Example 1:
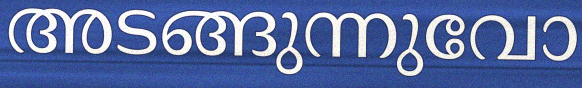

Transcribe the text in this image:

അടങ്ങുന്നുവോ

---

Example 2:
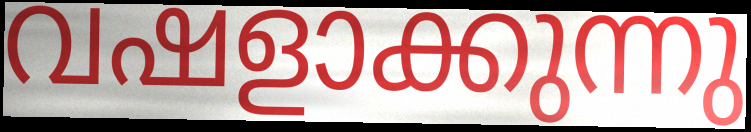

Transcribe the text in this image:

വഷളാക്കുന്നു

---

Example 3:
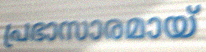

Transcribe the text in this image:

പ്രഭാസാരമായ്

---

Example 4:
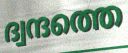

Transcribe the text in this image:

ദ്വന്ദത്തെ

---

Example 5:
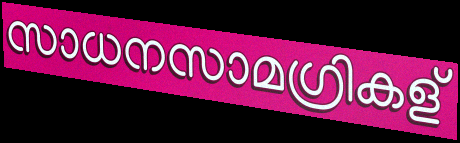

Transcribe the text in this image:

സാധനസാമഗ്രികള്